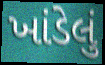
ખાંડેલું